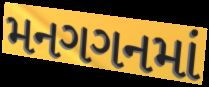
મનગગનમાં